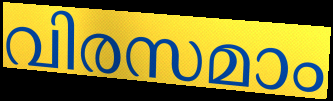
വിരസമാം